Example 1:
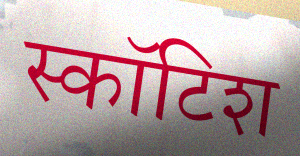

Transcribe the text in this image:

स्कॉटिश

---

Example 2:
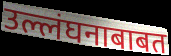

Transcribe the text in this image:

उल्लंघनाबाबत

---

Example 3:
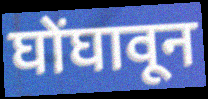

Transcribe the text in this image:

घोंघावून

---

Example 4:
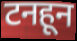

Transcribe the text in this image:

टनहून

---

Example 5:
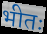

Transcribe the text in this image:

भीतः